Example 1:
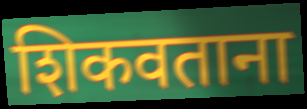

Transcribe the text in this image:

शिकवताना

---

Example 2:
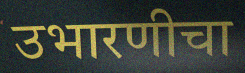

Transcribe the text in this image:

उभारणीचा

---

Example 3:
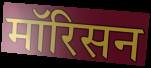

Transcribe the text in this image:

मॉरिसन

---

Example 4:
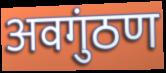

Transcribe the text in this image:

अवगुंठण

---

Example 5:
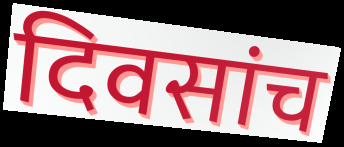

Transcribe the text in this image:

दिवसांच